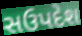
સઉપદેશ